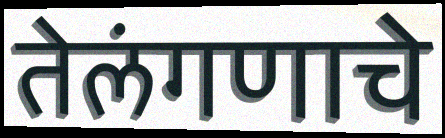
तेलंगणाचे